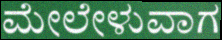
ಮೇಲೇಳುವಾಗ